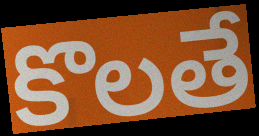
కొలతే